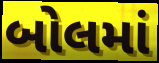
બોલમાં